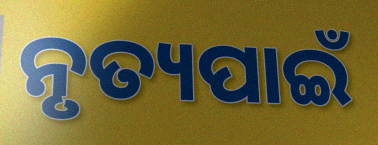
ନୃତ୍ୟପାଇଁ